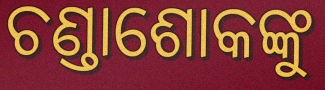
ଚଣ୍ଡାଶୋକଙ୍କୁ